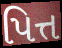
પિત્ત